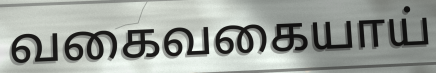
வகைவகையாய்